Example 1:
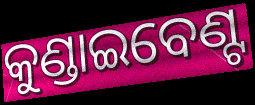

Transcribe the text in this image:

କୁଣ୍ଡାଇବେଣ୍ଟ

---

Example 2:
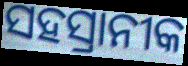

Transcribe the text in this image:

ସହସ୍ରାନୀକ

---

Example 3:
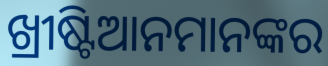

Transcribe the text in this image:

ଖ୍ରୀଷ୍ଟିଆନମାନଙ୍କର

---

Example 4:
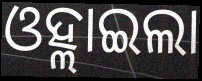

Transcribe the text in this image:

ଓହ୍ଲାଇଲା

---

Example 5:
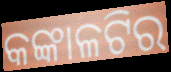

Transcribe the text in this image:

କଙ୍କାଳଟିର